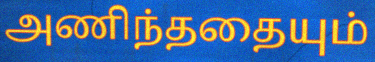
அணிந்ததையும்